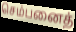
செம்பனைத்